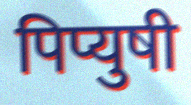
पिप्युषी